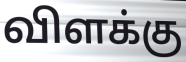
விளக்கு